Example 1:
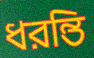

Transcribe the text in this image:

ধরন্তি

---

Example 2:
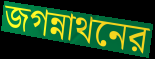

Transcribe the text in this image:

জগন্নাথনের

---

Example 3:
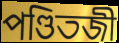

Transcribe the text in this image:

পণ্ডিতজী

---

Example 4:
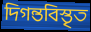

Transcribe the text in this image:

দিগন্তবিস্তৃত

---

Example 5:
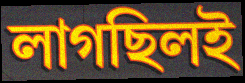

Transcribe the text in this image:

লাগছিলই